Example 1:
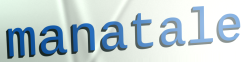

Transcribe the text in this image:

manatale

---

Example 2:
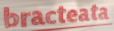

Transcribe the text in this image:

bracteata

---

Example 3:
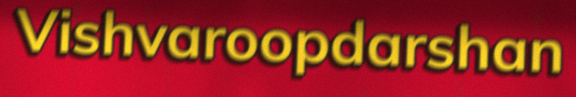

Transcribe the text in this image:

Vishvaroopdarshan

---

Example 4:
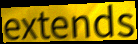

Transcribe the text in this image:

extends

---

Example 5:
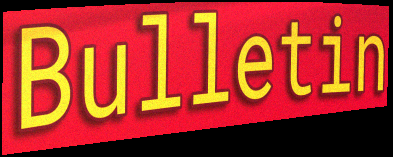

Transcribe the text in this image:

Bulletin